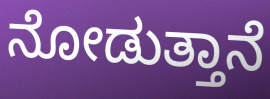
ನೋಡುತ್ತಾನೆ